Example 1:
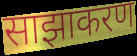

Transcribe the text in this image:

साझाकरण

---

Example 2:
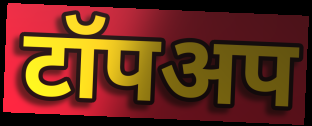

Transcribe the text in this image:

टॉपअप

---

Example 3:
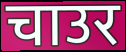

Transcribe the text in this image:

चाउर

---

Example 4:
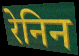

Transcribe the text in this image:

रेनिन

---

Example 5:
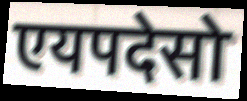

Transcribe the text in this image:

एयपदेसो